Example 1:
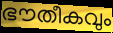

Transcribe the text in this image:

ഭൗതീകവും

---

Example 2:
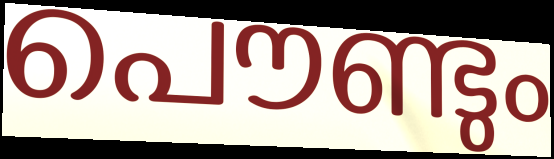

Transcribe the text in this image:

പൌണ്ടും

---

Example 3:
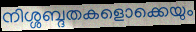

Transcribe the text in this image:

നിശ്ശബ്ദതകളൊക്കെയും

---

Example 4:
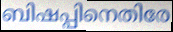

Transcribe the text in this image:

ബിഷപ്പിനെതിരേ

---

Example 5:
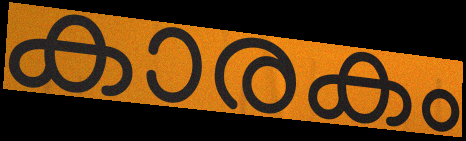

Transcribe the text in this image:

കാരകം